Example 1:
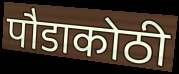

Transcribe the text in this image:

पौडाकोठी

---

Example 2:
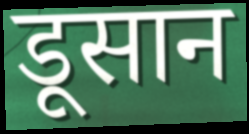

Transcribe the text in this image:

डूसान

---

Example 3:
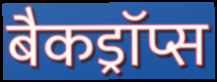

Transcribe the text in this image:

बैकड्रॉप्स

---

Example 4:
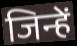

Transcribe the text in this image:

जिन्‍हें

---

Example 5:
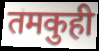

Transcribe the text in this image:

तमकुही